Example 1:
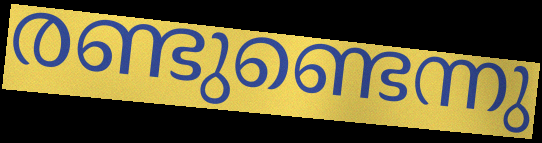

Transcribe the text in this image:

രണ്ടുണ്ടെന്നു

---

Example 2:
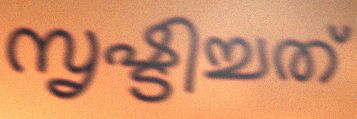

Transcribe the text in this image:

സൃഷ്ടിച്ചത്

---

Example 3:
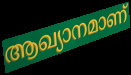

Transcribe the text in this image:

ആഖ്യാനമാണ്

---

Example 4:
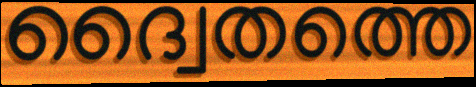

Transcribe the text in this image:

ദ്വൈതത്തെ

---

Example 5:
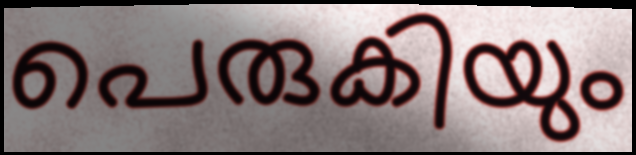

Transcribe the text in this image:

പെരുകിയും